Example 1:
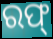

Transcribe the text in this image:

ରଫ୍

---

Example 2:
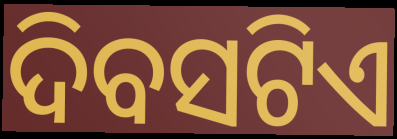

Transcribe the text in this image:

ଦିବସଟିଏ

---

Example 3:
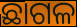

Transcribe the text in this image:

ଛାଗଳ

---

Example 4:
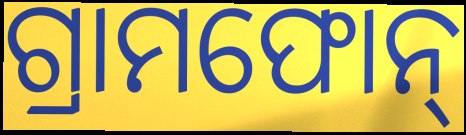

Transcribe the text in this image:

ଗ୍ରାମଫୋନ୍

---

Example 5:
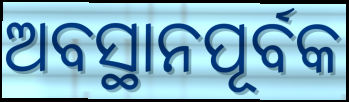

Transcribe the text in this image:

ଅବସ୍ଥାନପୂର୍ବକ